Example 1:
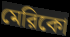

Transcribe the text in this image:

মেরিকো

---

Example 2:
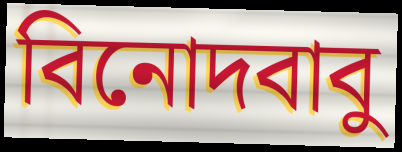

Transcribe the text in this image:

বিনোদবাবু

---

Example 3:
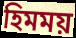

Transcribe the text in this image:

হিমময়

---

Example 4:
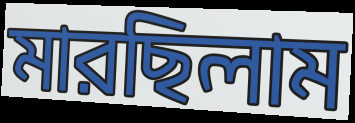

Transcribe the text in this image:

মারছিলাম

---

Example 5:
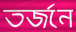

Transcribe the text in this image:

তর্জনে